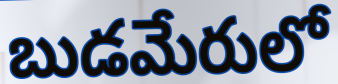
బుడమేరులో